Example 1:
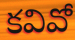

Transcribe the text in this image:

కవివో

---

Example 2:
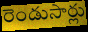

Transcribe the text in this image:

రెండుసార్లు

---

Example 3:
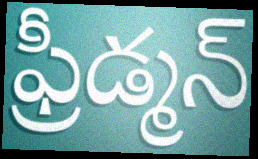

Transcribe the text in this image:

ఫ్రీడ్మన్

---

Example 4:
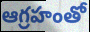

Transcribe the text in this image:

ఆగ్రహంతో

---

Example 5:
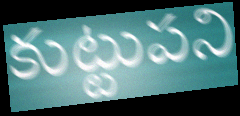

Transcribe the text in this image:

కుట్టుపని